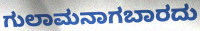
ಗುಲಾಮನಾಗಬಾರದು